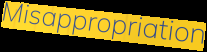
Misappropriation